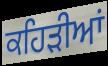
ਕਹਿੜੀਆਂ